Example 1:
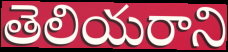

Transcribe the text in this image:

తెలియరాని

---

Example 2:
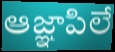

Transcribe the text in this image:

ఆజ్ఞాపిలే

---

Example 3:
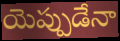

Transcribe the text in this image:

యెప్పుడేనా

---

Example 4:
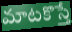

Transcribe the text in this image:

మాటకొస్తే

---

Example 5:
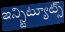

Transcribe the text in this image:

ఇన్స్టిట్యూట్స్